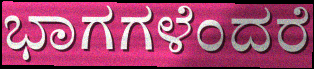
ಭಾಗಗಳೆಂದರೆ